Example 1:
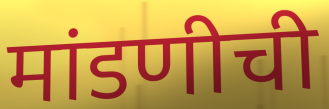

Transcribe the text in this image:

मांडणीची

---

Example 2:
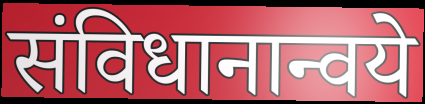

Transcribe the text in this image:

संविधानान्वये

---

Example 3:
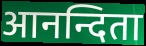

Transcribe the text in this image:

आनन्दिता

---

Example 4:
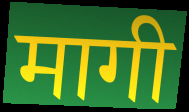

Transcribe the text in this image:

मागी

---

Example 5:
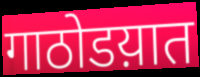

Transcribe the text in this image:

गाठोडय़ात